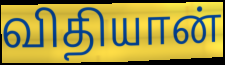
விதியான்